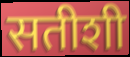
सतीशी